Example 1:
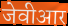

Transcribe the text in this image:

जेवीआर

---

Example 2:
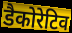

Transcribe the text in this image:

डैकोरेटिव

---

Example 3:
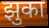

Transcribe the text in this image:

झुका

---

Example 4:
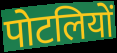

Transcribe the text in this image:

पोटलियों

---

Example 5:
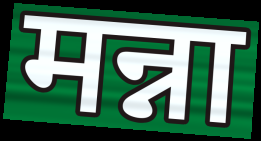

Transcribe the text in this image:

मन्ना